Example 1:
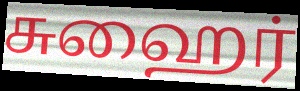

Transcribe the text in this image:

சுஹைர்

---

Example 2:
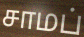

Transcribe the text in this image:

சாமப்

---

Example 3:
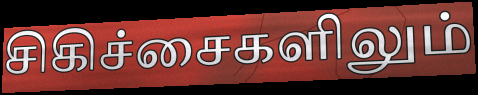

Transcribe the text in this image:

சிகிச்சைகளிலும்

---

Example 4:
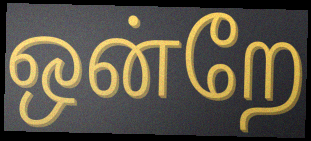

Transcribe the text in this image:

ஒன்றே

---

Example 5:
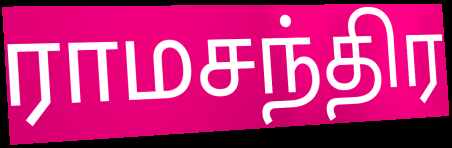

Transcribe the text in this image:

ராமசந்திர